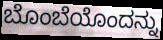
ಬೊಂಬೆಯೊಂದನ್ನು